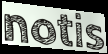
notis